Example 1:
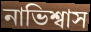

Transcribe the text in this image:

নাভিশ্বাস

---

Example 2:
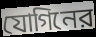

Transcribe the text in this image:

যোগিনের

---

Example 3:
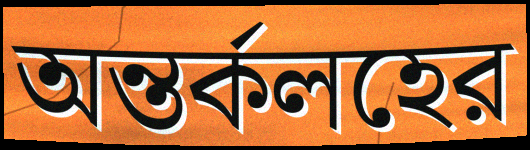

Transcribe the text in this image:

অন্তর্কলহের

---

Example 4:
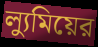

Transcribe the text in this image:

ল্যুমিয়ের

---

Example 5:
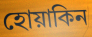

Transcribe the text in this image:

হোয়াকিন